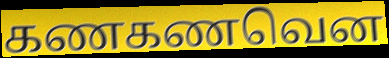
கணகணவென